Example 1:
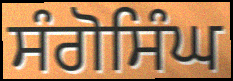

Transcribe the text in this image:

ਸੰਗੋਸਿੰਘ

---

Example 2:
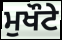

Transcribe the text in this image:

ਮੁਖੌਟੇ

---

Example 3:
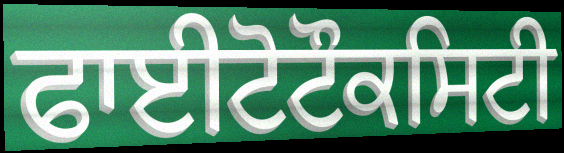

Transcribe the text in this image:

ਫਾਈਟੋਟੌਕਸਿਟੀ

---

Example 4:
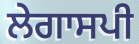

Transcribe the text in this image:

ਲੇਗਾਸਪੀ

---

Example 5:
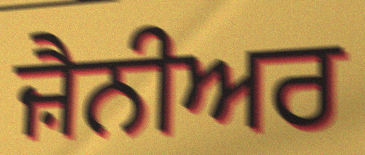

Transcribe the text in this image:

ਜ਼ੈਨੀਅਰ